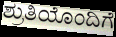
ಶ್ರುತಿಯೊಂದಿಗೆ